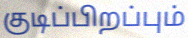
குடிப்பிறப்பும்